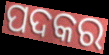
ପଦକର